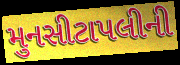
મુનસીટાપલીની